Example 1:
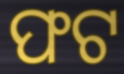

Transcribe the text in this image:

ଫଟ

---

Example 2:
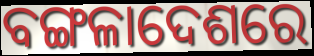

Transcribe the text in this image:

ବଙ୍ଗଳାଦେଶରେ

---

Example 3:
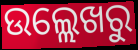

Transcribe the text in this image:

ଉଲ୍ଲେଖରୁ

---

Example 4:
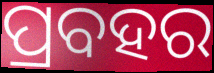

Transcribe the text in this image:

ପ୍ରବହର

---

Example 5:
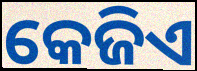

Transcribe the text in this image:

କେଜିଏ